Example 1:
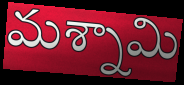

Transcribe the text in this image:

మశ్నామి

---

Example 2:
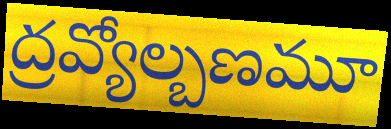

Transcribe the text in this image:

ద్రవ్యోల్బణమూ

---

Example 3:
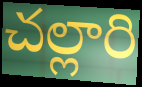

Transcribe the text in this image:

చల్లారి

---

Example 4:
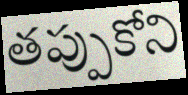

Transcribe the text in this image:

తప్పుకోని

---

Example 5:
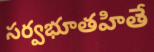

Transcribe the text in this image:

సర్వభూతహితే